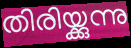
തിരിയ്ക്കുന്നു